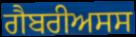
ਗੈਬਰੀਅਸਸ